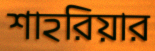
শাহরিয়ার